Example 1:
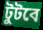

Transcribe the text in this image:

টুটবে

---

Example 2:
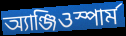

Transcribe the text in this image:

অ্যাঞ্জিওস্পার্ম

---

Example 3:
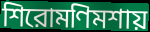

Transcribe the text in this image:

শিরোমণিমশায়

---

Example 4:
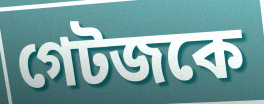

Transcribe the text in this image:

গেটজকে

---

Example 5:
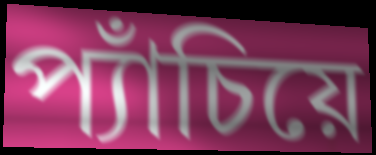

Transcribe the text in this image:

প্যাঁচিয়ে